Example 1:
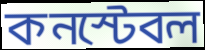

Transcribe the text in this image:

কনস্টেবল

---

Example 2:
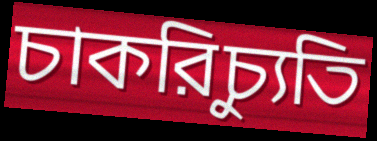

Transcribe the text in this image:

চাকরিচ্যুতি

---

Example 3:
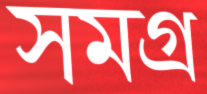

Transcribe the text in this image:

সমগ্র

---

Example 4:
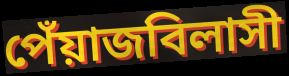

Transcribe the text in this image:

পেঁয়াজবিলাসী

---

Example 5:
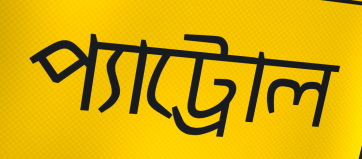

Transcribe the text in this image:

প্যাট্রোল